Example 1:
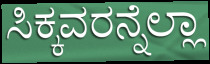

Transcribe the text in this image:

ಸಿಕ್ಕವರನ್ನೆಲ್ಲಾ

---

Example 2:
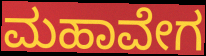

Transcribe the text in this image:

ಮಹಾವೇಗ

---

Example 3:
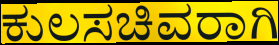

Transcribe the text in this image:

ಕುಲಸಚಿವರಾಗಿ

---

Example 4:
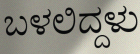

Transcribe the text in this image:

ಬಳಲಿದ್ದಳು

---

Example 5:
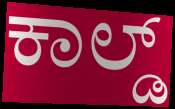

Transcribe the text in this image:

ಕಾಲ್ಡ್